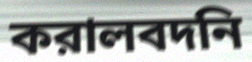
করালবদনি